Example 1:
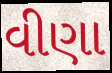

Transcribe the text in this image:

વીણા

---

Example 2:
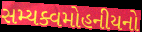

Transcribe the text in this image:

સમ્યક્વમોહનીયનો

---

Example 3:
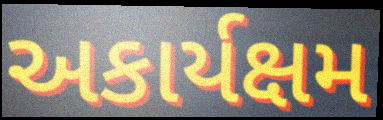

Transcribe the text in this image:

અકાર્યક્ષમ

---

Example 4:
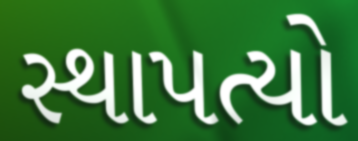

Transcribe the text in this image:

સ્થાપત્યો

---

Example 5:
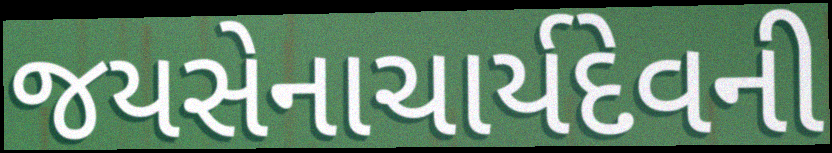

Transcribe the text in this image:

જયસેનાચાર્યદેવની